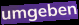
umgeben